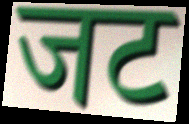
जट